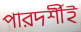
পারদর্শীই